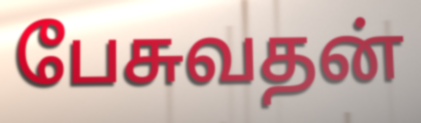
பேசுவதன்